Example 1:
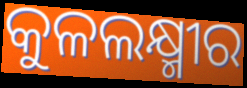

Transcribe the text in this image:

କୁଳଲକ୍ଷ୍ମୀର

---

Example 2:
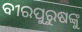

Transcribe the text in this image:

ବୀରପୁରୁଷଙ୍କୁ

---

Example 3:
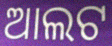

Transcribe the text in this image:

ଆଲଟ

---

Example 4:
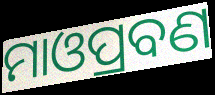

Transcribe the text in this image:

ମାଓପ୍ରବଣ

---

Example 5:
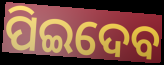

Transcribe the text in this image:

ପିଇଦେବ